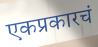
एकप्रकारचं